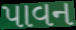
પાવન